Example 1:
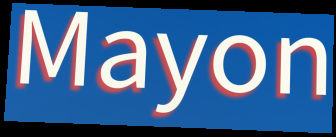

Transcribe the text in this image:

Mayon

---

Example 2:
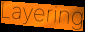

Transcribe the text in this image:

Layering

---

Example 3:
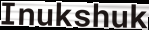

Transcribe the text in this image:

Inukshuk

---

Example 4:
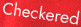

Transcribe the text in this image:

Checkered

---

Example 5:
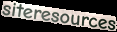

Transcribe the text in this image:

siteresources